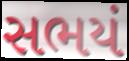
સભયં